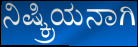
ನಿಷ್ಕ್ರಿಯನಾಗಿ